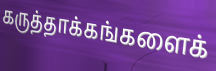
கருத்தாக்கங்களைக்